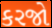
કરજો